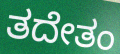
ತದೇತಂ